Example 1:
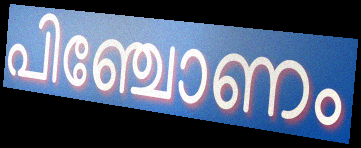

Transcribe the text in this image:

പിഞ്ചോണം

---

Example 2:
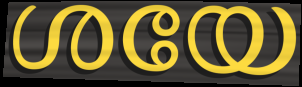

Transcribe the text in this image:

ശയേ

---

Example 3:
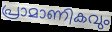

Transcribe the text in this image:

പ്രാമാണികവും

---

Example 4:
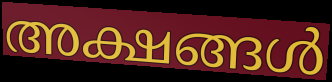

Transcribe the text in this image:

അക്ഷങ്ങൾ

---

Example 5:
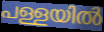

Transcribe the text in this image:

പള്ളയിൽ